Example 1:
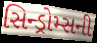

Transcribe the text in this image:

સિન્ડ્રોમ્સની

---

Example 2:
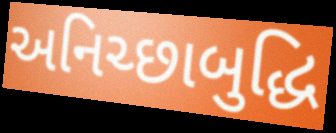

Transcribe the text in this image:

અનિચ્છાબુદ્ધિ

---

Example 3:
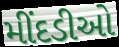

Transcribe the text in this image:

મીંદડીઓ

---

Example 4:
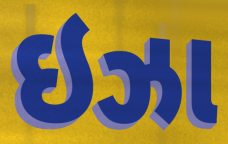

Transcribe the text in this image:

ઇઝા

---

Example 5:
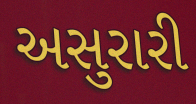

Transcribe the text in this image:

અસુરારી